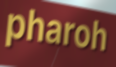
pharoh